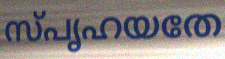
സ്പൃഹയതേ